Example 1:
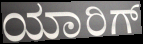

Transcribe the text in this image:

ಯಾರಿಗ್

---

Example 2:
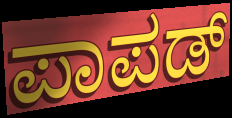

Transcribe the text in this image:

ಪಾಪಡ್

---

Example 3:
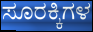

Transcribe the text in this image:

ಸೂರಕ್ಕಿಗಳ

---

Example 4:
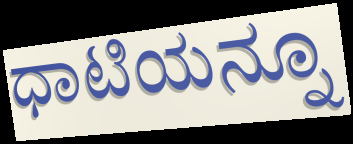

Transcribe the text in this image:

ಧಾಟಿಯನ್ನೂ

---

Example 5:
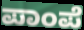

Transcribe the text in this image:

ಪಾಂಪೆ